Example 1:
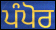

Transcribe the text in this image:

ਪੰਪੋਰ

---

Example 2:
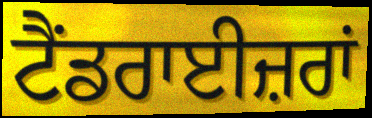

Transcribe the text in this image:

ਟੈਂਡਰਾਈਜ਼ਰਾਂ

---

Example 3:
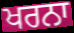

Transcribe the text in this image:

ਖਰਨਾ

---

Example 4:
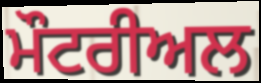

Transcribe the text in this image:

ਮੌਟਰੀਅਲ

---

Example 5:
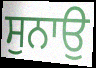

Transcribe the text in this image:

ਸੁਨਾਉ